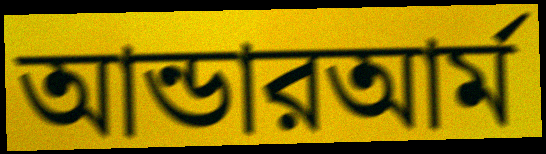
আন্ডারআর্ম